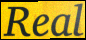
Real